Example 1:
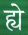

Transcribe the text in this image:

ह्ये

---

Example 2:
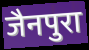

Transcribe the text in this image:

जैनपुरा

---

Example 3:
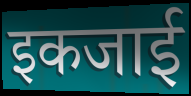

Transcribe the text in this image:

इकजाई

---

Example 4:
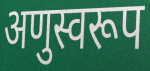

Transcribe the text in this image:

अणुस्वरूप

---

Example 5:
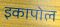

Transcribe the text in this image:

इकापोल